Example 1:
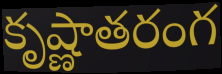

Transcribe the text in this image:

కృష్ణాతరంగ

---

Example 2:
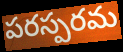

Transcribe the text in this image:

పరస్పరమ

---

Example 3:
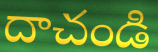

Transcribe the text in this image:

దాచండి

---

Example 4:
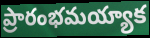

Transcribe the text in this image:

ప్రారంభమయ్యాక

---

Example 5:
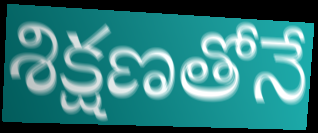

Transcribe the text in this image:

శిక్షణతోనే